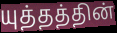
யுத்தத்தின்